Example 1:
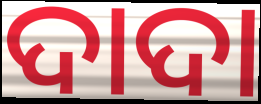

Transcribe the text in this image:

ଦାଦା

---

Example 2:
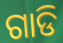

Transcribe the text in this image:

ଗାଡି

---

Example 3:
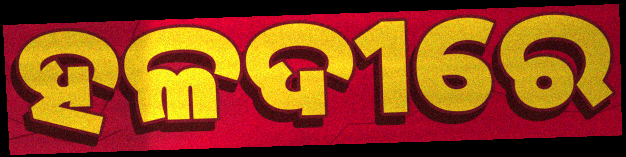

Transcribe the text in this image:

ହଳଦୀରେ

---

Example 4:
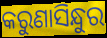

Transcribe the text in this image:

କରୁଣାସିନ୍ଧୁର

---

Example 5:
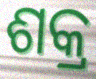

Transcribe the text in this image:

ଶକ୍ର